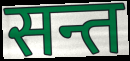
सन्त